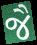
જૈ